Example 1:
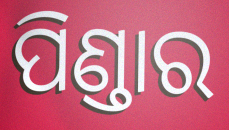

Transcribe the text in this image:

ପିଣ୍ଡାର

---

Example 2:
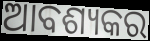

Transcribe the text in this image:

ଆବଶ୍ୟକର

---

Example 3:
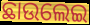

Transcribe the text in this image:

ଛାଉଲେଇ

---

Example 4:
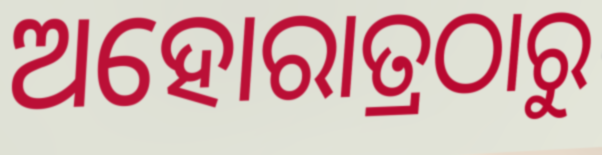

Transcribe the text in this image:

ଅହୋରାତ୍ରଠାରୁ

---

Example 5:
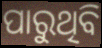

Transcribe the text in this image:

ପାରୁଥିବି